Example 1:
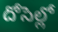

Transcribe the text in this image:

దోసెల్లో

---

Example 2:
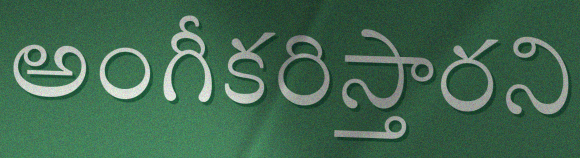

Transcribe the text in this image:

అంగీకరిస్తారని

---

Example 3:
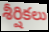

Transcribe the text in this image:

శీర్షికలు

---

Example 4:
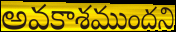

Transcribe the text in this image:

అవకాశముందని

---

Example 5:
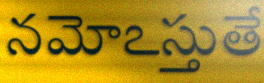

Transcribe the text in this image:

నమోఽస్తుతే